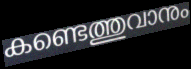
കണ്ടെത്തുവാനും